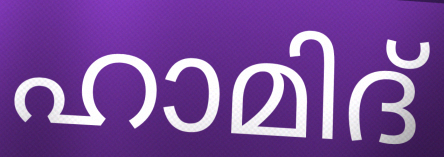
ഹാമിദ്